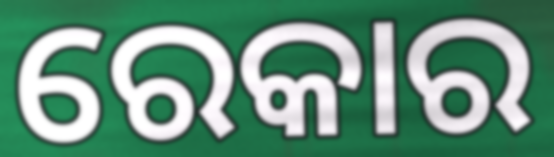
ରେକାର